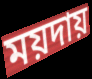
ময়দায়